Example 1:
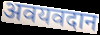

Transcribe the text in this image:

अवयवदान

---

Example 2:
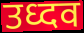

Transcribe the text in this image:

उध्दव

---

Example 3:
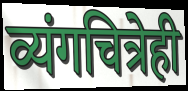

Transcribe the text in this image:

व्यंगचित्रेही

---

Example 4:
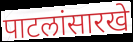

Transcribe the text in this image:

पाटलांसारखे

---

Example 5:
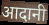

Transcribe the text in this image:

आदानी